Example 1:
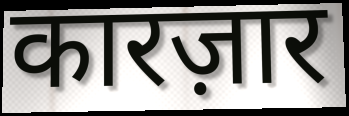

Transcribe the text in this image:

कारज़ार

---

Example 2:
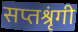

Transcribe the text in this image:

सप्तश्रृंगी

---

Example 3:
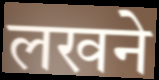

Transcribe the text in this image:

लखने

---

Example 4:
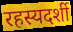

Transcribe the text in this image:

रहस्यदर्शी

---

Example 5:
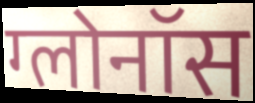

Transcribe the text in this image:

ग्लोनॉस